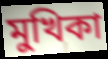
মুখিকা